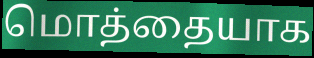
மொத்தையாக